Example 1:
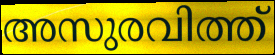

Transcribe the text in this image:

അസുരവിത്ത്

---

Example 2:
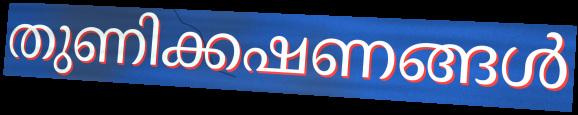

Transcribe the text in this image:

തുണിക്കഷണങ്ങൾ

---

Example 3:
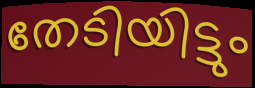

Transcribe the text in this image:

തേടിയിട്ടും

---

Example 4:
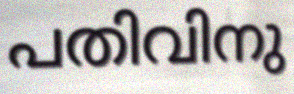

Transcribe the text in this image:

പതിവിനു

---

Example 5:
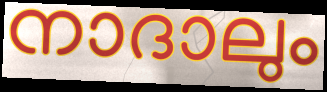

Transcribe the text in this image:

നാദാലും